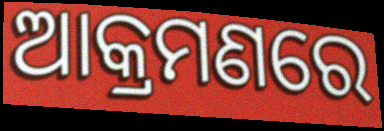
ଆକ୍ରମଣରେ